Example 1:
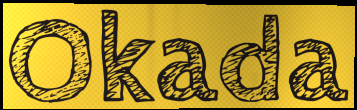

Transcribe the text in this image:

Okada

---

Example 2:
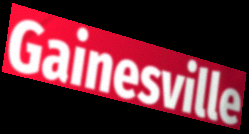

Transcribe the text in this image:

Gainesville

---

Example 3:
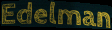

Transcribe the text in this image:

Edelman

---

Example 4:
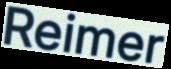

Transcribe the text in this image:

Reimer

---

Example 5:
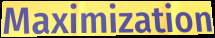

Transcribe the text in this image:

Maximization